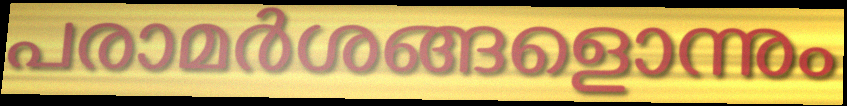
പരാമർശങ്ങളൊന്നും